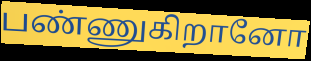
பண்ணுகிறானோ